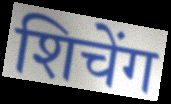
शिचेंग